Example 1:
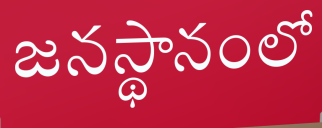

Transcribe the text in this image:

జనస్థానంలో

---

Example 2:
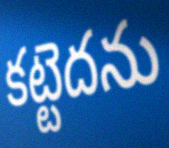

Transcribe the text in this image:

కట్టెదను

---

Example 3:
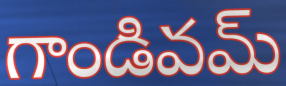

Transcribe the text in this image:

గాండివమ్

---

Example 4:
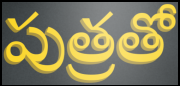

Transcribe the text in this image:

పుత్రతో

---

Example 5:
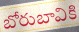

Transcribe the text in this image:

బోరుబావికి